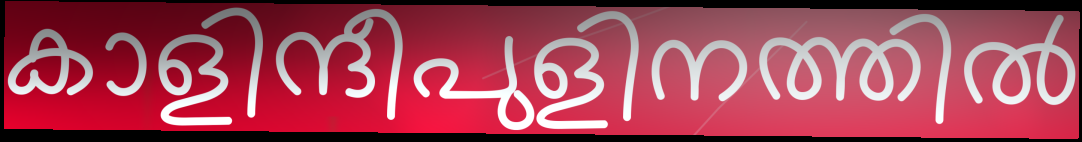
കാളിന്ദീപുളിനത്തിൽ